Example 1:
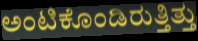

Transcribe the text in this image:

ಅಂಟಿಕೊಂಡಿರುತ್ತಿತ್ತು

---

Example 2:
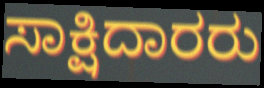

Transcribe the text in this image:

ಸಾಕ್ಷಿದಾರರು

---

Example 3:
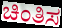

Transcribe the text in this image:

ಚಿಂತಿಸ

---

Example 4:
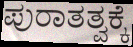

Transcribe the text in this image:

ಪುರಾತತ್ವಕ್ಕೆ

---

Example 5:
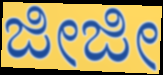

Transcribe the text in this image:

ಜೀಜೀ